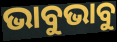
ଭାବୁଭାବୁ